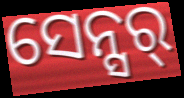
ସେନ୍ସର୍